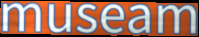
museam